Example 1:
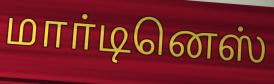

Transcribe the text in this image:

மார்டினெஸ்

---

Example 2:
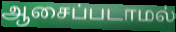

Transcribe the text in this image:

ஆசைப்படாமல்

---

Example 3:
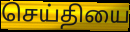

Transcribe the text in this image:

செய்தியை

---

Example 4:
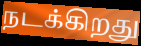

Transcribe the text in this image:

நடக்கிறது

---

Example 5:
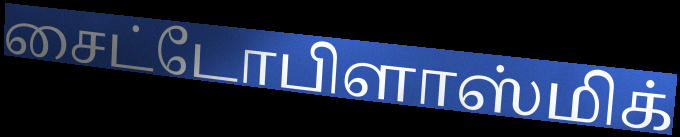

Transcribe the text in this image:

சைட்டோபிளாஸ்மிக்